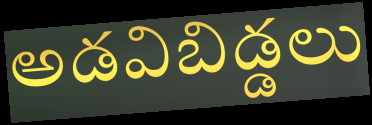
అడవిబిడ్డలు